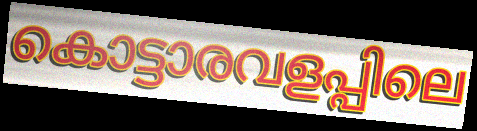
കൊട്ടാരവളപ്പിലെ